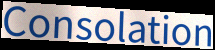
Consolation